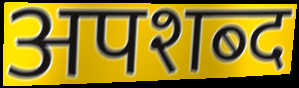
अपशब्‍द